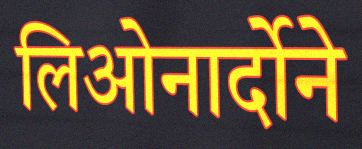
लिओनार्दोने